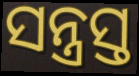
ସନ୍ତ୍ରସ୍ତ